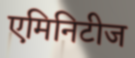
एमिनिटीज